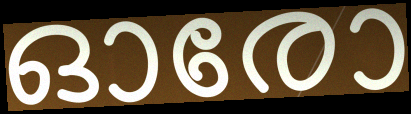
ഓരോ